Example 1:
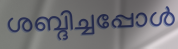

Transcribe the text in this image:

ശബ്ദിച്ചപ്പോൾ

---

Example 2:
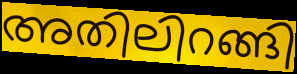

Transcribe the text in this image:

അതിലിറങ്ങി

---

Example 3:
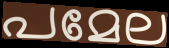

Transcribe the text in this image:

പമേല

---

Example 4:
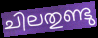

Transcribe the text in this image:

ചിലതുണ്ടു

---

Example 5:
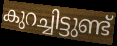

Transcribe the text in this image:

കുറച്ചിട്ടുണ്ട്